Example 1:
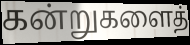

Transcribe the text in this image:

கன்றுகளைத்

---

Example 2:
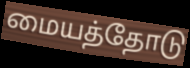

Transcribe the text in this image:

மையத்தோடு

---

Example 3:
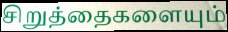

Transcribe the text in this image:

சிறுத்தைகளையும்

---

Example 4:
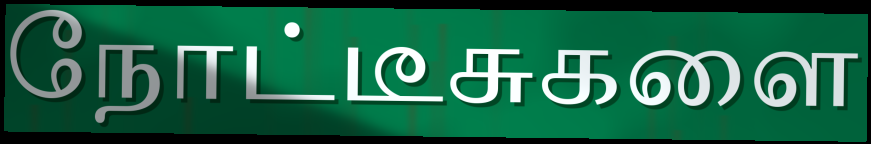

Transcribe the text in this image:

நோட்டீசுகளை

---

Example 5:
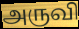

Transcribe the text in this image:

அருவி